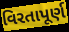
વિરતાપૂર્ણ